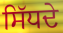
ਸਿੱਧਦੇ